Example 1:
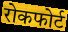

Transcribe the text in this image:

रोकफोर्ट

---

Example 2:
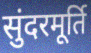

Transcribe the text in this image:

सुंदरमूर्ति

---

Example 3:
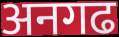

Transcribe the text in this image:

अनगढ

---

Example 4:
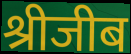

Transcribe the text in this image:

श्रीजीब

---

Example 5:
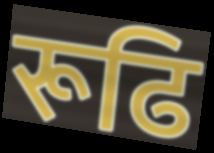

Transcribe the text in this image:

रूढि